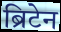
ब्रिटेन